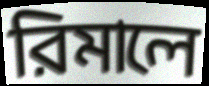
রিমালে